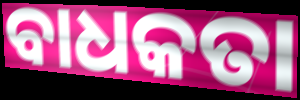
ବାଧକତା